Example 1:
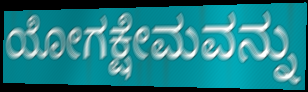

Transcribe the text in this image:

ಯೋಗಕ್ಷೇಮವನ್ನು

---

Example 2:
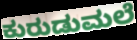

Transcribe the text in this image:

ಕುರುಡುಮಲೆ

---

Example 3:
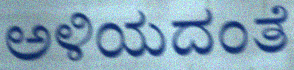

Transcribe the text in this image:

ಅಳಿಯದಂತೆ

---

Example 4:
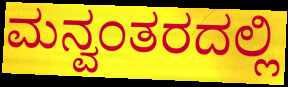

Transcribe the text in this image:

ಮನ್ವಂತರದಲ್ಲಿ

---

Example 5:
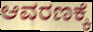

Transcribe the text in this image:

ಆವರಣಕ್ಕೆ